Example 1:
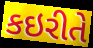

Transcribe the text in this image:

કઇરીતે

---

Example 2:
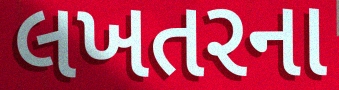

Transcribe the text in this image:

લખતરના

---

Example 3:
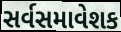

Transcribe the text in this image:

સર્વસમાવેશક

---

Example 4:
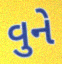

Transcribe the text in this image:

વુને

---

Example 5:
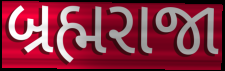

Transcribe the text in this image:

બ્રહ્મરાજા